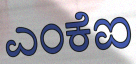
ಎಂಕೆಐ